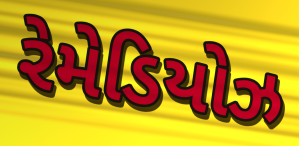
રેમેડિયોઝ